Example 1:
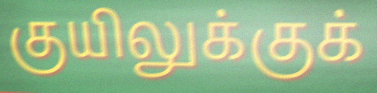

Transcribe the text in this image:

குயிலுக்குக்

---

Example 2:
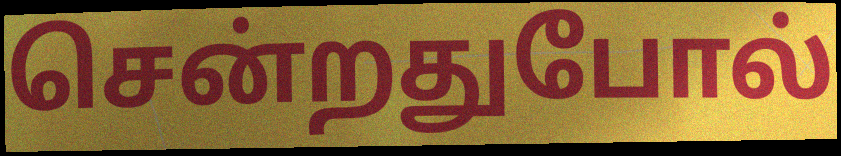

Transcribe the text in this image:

சென்றதுபோல்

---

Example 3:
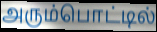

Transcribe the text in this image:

அரும்பொட்டில்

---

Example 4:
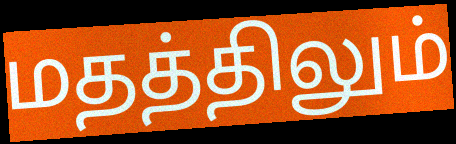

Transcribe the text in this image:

மதத்திலும்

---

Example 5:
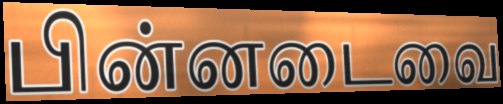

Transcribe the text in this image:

பின்னடைவை